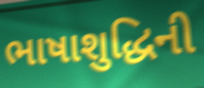
ભાષાશુદ્ધિની